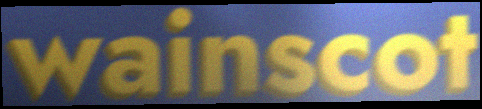
wainscot